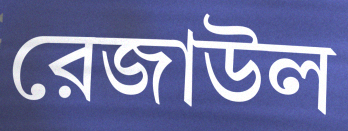
রেজাউল